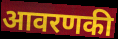
आवरणकी